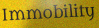
Immobility